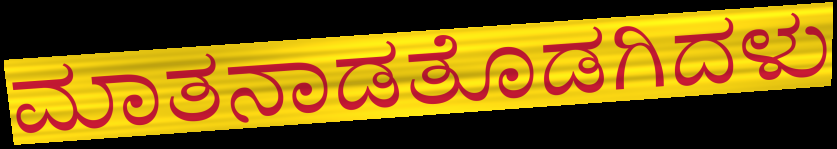
ಮಾತನಾಡತೊಡಗಿದಳು